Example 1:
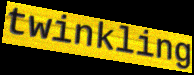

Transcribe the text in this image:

twinkling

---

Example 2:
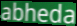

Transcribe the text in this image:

abheda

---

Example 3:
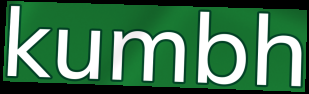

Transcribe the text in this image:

kumbh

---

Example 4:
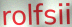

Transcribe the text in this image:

rolfsii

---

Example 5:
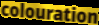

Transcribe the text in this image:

colouration